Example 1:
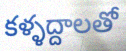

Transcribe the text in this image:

కళ్ళద్దాలతో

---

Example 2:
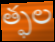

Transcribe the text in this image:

త్ఫల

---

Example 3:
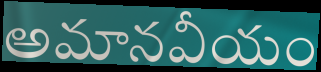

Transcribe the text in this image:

అమానవీయం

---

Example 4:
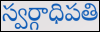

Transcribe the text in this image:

స్వర్గాధిపతి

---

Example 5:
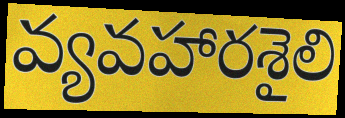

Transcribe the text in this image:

వ్యవహారశైలి